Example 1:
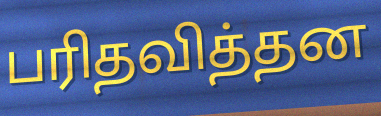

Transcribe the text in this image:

பரிதவித்தன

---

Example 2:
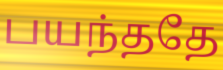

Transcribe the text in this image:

பயந்ததே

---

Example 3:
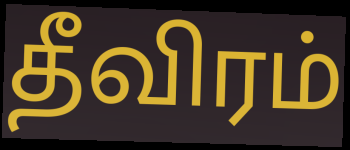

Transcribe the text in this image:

தீவிரம்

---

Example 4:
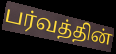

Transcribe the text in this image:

பர்வத்தின்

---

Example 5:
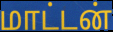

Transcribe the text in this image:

மாட்டன்